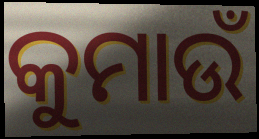
କୁମାଉଁ